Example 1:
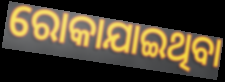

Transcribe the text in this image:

ରୋକାଯାଇଥିବା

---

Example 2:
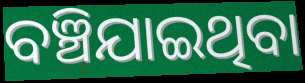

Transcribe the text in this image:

ବଞ୍ଚିଯାଇଥିବା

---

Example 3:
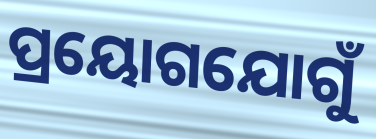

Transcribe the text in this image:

ପ୍ରୟୋଗଯୋଗୁଁ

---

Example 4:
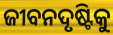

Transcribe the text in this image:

ଜୀବନଦୃଷ୍ଟିକୁ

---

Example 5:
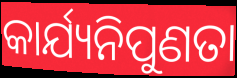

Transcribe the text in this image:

କାର୍ଯ୍ୟନିପୁଣତା